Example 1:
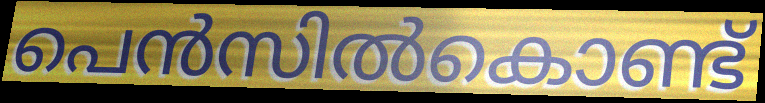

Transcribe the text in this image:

പെൻസിൽകൊണ്ട്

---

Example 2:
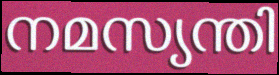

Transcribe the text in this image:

നമസ്യന്തി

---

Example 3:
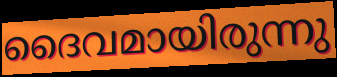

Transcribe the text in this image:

ദൈവമായിരുന്നു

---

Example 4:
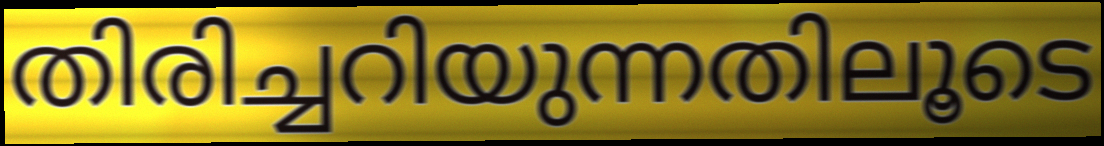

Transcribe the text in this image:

തിരിച്ചറിയുന്നതിലൂടെ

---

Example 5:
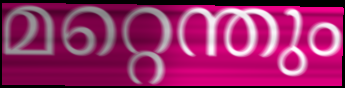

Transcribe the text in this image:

മറ്റെന്തും